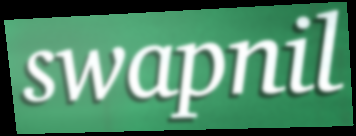
swapnil